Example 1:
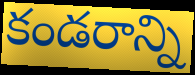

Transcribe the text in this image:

కండరాన్ని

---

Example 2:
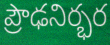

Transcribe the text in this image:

ప్రౌఢనిర్భర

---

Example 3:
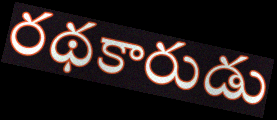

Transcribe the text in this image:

రథకారుడు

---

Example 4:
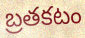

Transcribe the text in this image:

బ్రతకటం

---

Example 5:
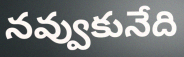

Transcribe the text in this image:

నవ్వుకునేది